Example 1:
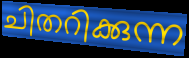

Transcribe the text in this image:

ചിതറിക്കുന്ന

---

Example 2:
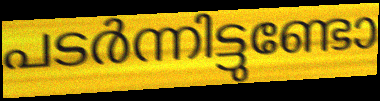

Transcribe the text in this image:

പടർന്നിട്ടുണ്ടോ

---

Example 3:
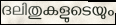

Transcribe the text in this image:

ദലിതുകളുടെയും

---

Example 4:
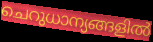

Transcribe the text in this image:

ചെറുധാന്യങ്ങളിൽ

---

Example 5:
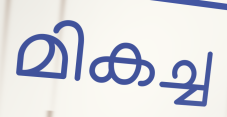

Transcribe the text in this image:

മികച്ച